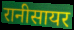
रानीसायर